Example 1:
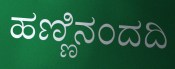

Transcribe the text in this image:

ಹಣ್ಣಿನಂದದಿ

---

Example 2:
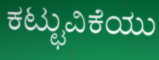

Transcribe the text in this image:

ಕಟ್ಟುವಿಕೆಯು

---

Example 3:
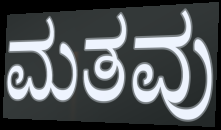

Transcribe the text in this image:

ಮತವು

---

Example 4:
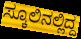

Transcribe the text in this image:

ಸ್ಕೂಲಿನಲ್ಲಿದ್ದ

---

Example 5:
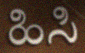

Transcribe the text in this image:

ಹಿಸಿ